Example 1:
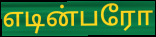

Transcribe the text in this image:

எடின்பரோ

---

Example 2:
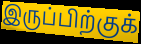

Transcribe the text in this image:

இருப்பிற்குக்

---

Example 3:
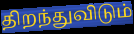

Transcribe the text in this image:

திறந்துவிடும்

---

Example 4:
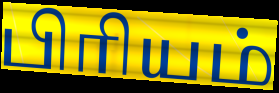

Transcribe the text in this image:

பிரியம்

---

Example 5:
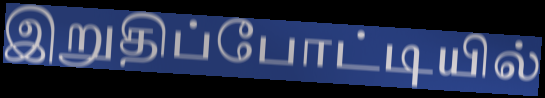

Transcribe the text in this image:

இறுதிப்போட்டியில்